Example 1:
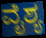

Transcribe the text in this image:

ವೈಶ್ಯ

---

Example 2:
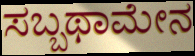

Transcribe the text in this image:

ಸಬ್ಬಥಾಮೇನ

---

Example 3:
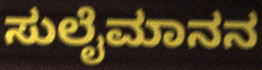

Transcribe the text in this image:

ಸುಲೈಮಾನನ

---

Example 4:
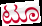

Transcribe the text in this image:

ಟೂ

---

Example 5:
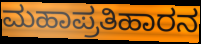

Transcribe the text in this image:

ಮಹಾಪ್ರತಿಹಾರನ